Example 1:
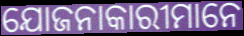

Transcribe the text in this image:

ଯୋଜନାକାରୀମାନେ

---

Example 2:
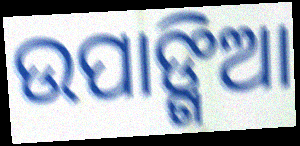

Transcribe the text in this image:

ଉପାଙ୍ଗିଆ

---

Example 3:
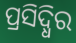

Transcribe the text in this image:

ପ୍ରସିଦ୍ଧିର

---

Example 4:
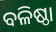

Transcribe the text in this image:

ବଳିଷ୍ଠା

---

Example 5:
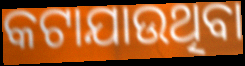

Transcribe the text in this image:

କଟାଯାଉଥିବା